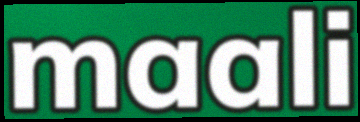
maali